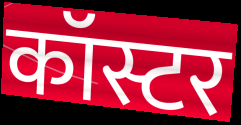
कॉस्टर